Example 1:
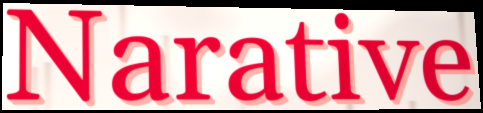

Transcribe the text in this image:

Narative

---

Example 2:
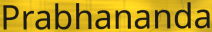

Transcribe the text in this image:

Prabhananda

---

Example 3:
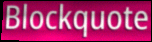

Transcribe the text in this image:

Blockquote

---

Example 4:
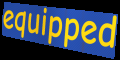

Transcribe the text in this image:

equipped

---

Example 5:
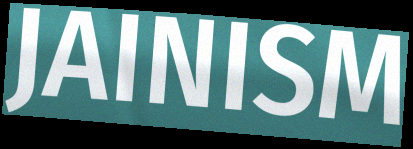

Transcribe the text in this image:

JAINISM